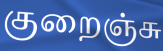
குறைஞ்சு